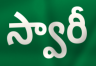
స్వారీ